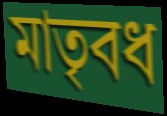
মাতৃবধ